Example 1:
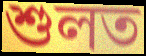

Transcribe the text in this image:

শুলত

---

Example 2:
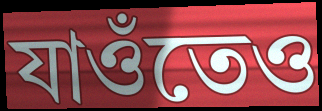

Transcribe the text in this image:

যাওঁতেও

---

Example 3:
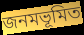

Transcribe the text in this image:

জনমভূমিত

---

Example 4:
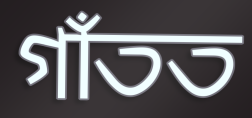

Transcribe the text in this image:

গাঁতত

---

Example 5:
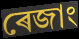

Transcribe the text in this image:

ৰেজাং